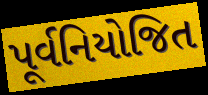
પૂર્વનિયોજિત